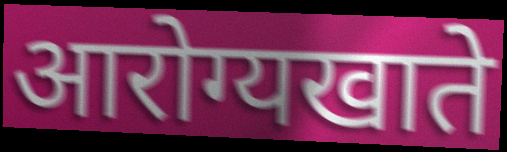
आरोग्यखाते